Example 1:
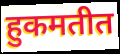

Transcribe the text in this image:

हुकमतीत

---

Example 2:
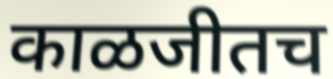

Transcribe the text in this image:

काळजीतच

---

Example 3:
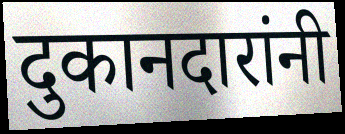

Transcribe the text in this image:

दुकानदारांनी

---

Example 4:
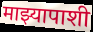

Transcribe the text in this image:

माझ्यापाशी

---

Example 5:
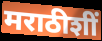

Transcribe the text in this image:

मराठीशीं